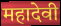
महादेवी